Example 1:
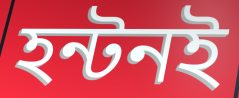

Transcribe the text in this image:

হন্টনই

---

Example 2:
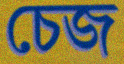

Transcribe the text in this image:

চেজ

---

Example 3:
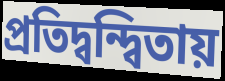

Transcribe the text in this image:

প্রতিদ্বন্দ্বিতায়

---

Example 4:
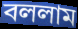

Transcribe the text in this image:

বললাম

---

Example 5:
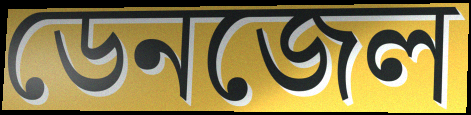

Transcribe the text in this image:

ডেনজেল